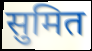
सुमित